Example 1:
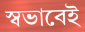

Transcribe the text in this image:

স্বভাবেই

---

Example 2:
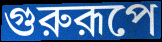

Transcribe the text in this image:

গুরুরূপে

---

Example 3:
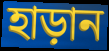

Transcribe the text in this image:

হাড়ান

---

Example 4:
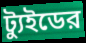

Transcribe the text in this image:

ট্যুইডের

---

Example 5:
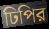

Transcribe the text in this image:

ঢিপির